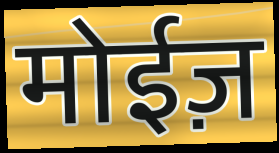
मोईज़